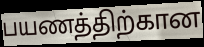
பயணத்திற்கான